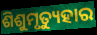
ଶିଶୁମୃତ୍ୟୁହାର